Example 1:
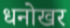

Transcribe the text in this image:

धनोखर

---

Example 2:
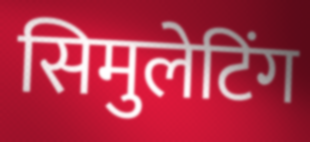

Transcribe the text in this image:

सिमुलेटिंग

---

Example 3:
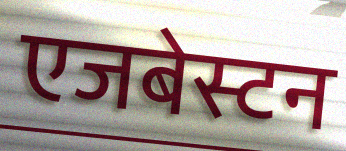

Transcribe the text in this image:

एजबेस्टन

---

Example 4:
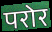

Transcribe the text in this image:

परोर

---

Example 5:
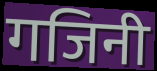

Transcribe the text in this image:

गजिनी